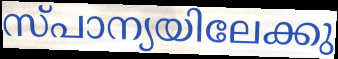
സ്പാന്യയിലേക്കു